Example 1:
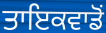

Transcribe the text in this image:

ਤਾਇਕਵਾਡੋਂ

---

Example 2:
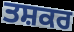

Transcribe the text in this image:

ਤਸ਼ਕਰ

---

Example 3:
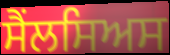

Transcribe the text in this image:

ਸੈਂਲਸਿਅਸ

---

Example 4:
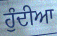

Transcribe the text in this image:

ਹੁੰਦੀਆ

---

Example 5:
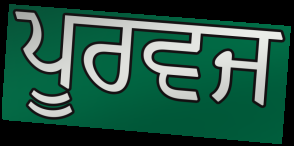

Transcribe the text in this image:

ਪੂਰਵਜ